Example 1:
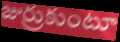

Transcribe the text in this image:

జుర్రుకుంటూ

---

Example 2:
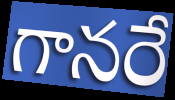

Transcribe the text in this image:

గానరే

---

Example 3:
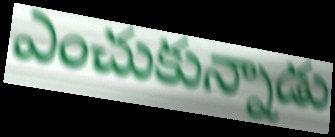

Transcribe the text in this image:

ఎంచుకున్నాడు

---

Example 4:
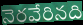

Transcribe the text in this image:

నెరవేరినది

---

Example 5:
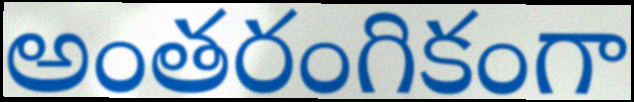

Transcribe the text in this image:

అంతరంగికంగా